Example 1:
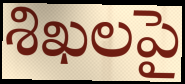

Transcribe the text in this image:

శిఖలపై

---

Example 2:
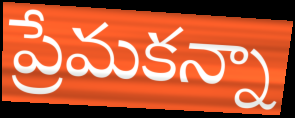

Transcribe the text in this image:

ప్రేమకన్నా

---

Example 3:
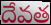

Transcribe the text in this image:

దేవత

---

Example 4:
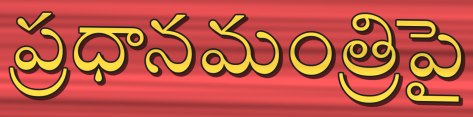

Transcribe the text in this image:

ప్రధానమంత్రిపై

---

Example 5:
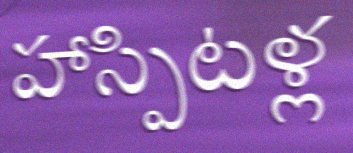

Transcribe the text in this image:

హాస్పిటళ్ల